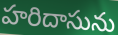
హరిదాసును